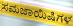
ಸಮಜಾಯಿಷಿಗಳ